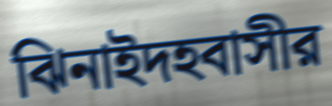
ঝিনাইদহবাসীর